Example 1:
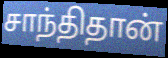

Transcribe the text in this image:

சாந்திதான்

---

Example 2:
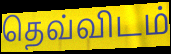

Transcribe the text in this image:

தெவ்விடம்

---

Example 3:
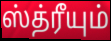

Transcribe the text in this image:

ஸ்த்ரீயும்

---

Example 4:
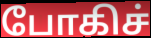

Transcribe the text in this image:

போகிச்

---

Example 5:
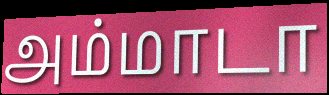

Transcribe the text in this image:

அம்மாடா